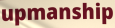
upmanship